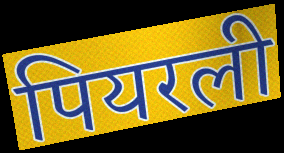
पियरली